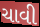
ચાવી